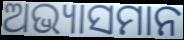
ଅଭ୍ୟାସମାନ